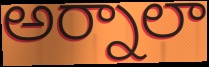
అర్నాలా